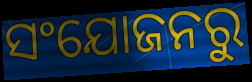
ସଂଯୋଜନରୁ